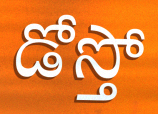
డోస్తో